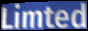
Limted